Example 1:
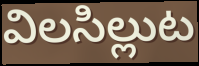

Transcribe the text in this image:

విలసిల్లుట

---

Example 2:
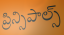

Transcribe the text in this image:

ప్రిన్సిపాల్స్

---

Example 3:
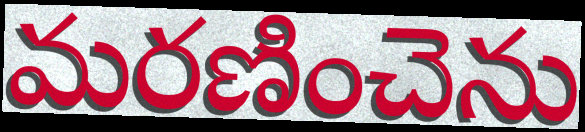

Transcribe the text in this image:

మరణించెను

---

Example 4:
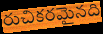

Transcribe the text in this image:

రుచికరమైనది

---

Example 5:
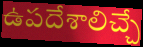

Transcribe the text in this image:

ఉపదేశాలిచ్చే